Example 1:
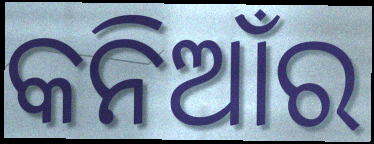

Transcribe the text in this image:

କନିଆଁର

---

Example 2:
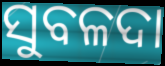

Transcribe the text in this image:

ସୁବଳଦା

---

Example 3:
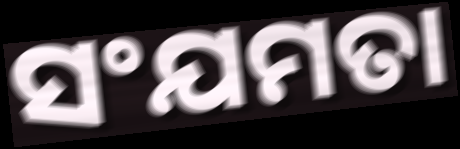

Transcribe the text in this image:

ସଂଯମତା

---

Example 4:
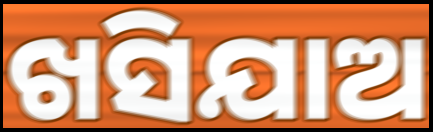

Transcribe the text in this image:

ଖସିଯାଅ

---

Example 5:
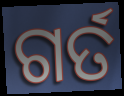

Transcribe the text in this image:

ଗର୍ତ